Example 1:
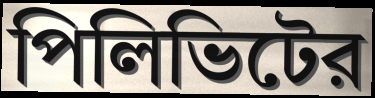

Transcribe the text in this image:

পিলিভিটের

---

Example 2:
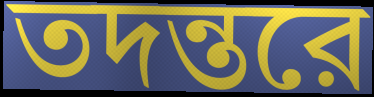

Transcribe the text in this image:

তদন্তরে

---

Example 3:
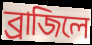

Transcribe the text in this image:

ব্রাজিলে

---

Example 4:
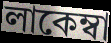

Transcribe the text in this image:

লাকেম্বা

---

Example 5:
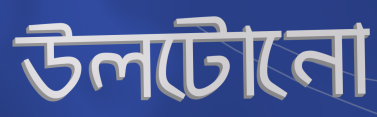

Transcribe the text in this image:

উলটোনো